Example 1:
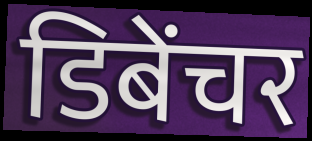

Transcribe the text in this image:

डिबेंचर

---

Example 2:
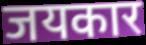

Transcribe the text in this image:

जयकार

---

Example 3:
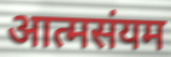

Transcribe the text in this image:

आत्मसंयम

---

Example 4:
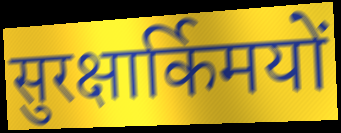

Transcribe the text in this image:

सुरक्षार्किमयों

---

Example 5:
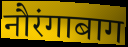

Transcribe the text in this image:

नौरंगाबाग